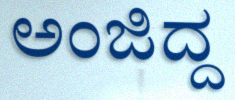
ಅಂಜಿದ್ದ